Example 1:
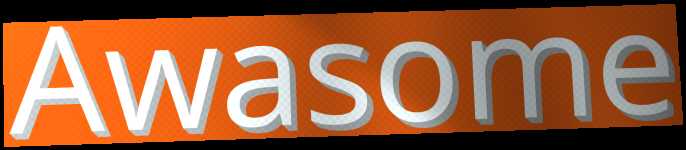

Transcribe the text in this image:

Awasome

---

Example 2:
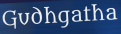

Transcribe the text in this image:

Gudhgatha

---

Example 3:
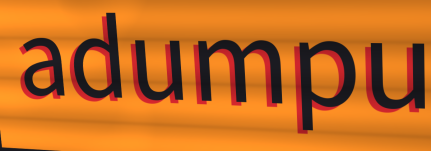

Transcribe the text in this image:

adumpu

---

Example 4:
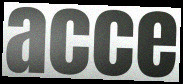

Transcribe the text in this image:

acce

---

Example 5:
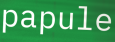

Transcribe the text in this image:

papule